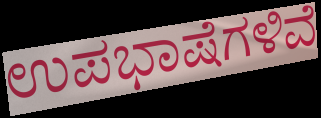
ಉಪಭಾಷೆಗಳಿವೆ